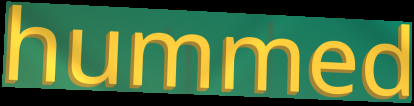
hummed